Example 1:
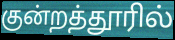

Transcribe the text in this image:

குன்றத்தூரில்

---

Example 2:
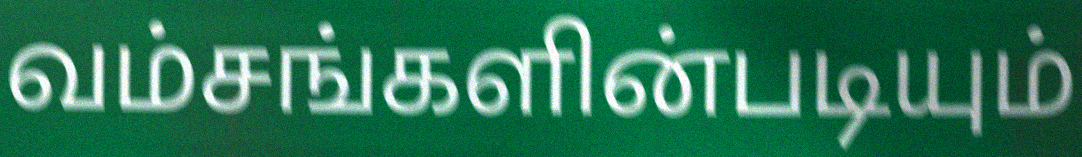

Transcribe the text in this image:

வம்சங்களின்படியும்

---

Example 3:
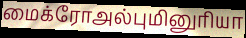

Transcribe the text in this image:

மைக்ரோஅல்புமினுரியா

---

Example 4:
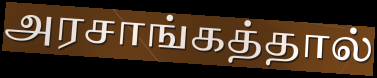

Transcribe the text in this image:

அரசாங்கத்தால்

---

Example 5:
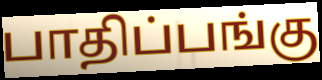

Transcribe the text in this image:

பாதிப்பங்கு